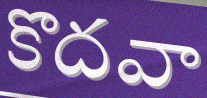
కొదవా